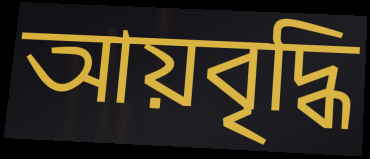
আয়বৃদ্ধি